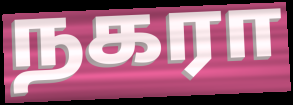
நகரா